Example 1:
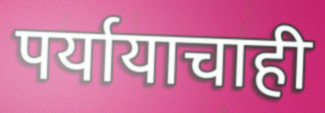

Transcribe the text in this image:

पर्यायाचाही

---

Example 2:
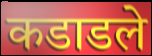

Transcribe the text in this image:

कडाडले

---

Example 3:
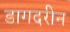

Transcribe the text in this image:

डागदरीन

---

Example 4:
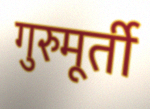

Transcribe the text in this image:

गुरुमूर्ती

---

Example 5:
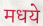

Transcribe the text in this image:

मधये